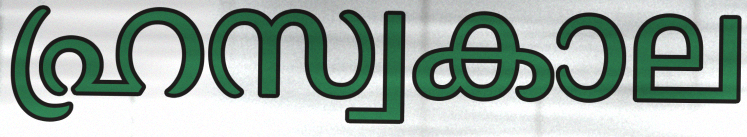
ഹ്രസ്വകാല